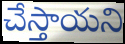
చేస్తాయని